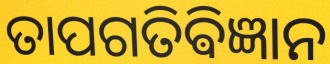
ତାପଗତିଵିଜ୍ଞାନ